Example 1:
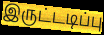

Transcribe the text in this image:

இருட்டடிப்பு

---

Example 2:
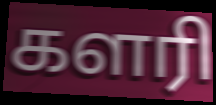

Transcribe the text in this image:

களரி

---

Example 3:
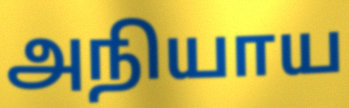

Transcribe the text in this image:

அநியாய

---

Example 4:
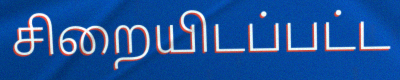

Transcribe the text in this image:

சிறையிடப்பட்ட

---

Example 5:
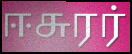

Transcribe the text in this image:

ஈசுரர்